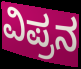
ವಿಪ್ರನ